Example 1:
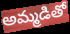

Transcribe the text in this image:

అమ్మడితో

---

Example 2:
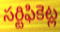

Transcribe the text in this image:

సర్టిఫికెట్ల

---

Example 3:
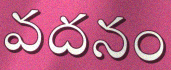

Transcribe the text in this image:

వదనం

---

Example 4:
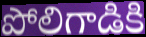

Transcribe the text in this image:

పోలిగాడికి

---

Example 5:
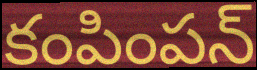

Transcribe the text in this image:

కంపింపన్